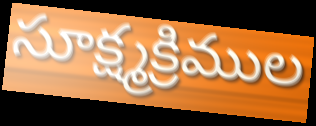
సూక్ష్మక్రిముల